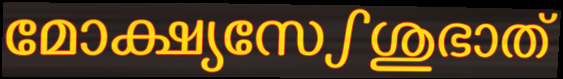
മോക്ഷ്യസേഽശുഭാത്